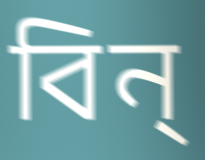
বিন্